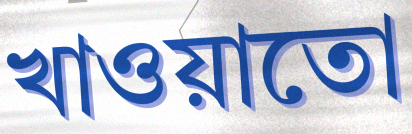
খাওয়াতো